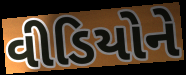
વીડિયોને